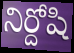
నిర్దోషి